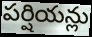
పర్షియన్లు